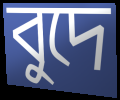
বুদে